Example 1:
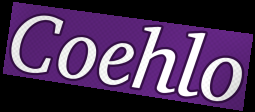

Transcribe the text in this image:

Coehlo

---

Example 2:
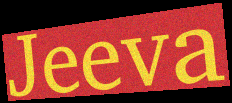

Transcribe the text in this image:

Jeeva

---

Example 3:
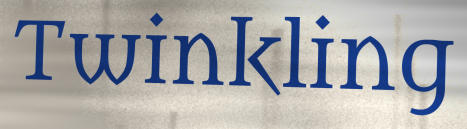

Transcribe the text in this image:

Twinkling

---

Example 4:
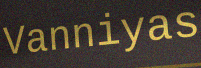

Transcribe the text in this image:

Vanniyas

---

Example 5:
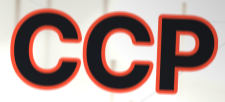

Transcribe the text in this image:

CCP